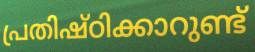
പ്രതിഷ്ഠിക്കാറുണ്ട്